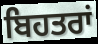
ਬਿਹਤਰਾਂ